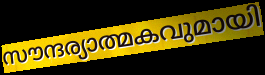
സൗന്ദര്യാത്മകവുമായി